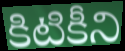
కిటికీని